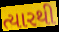
ત્યારથી